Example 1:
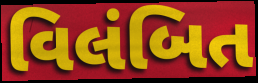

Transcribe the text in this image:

વિલંબિત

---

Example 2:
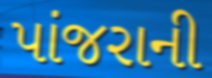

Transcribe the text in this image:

પાંજરાની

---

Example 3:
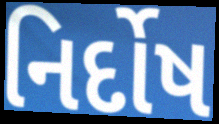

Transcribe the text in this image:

નિર્દોષ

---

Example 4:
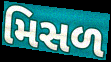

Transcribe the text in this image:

મિસળ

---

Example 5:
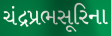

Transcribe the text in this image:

ચંદ્રપ્રભસૂરિના